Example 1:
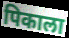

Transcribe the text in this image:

पिकाला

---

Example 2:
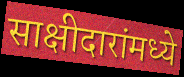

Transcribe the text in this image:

साक्षीदारांमध्ये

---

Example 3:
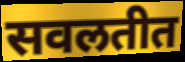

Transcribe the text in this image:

सवलतीत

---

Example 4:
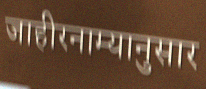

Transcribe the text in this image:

जाहीरनाम्यानुसार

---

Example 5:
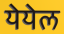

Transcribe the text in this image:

येयेल